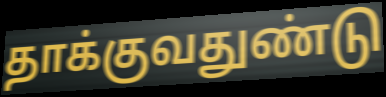
தாக்குவதுண்டு